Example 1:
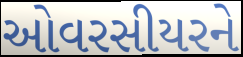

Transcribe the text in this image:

ઓવરસીયરને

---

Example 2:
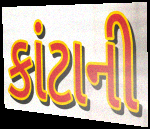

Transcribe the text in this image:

કાંટાની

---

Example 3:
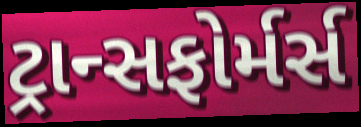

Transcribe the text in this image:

ટ્રાન્સફોર્મર્સ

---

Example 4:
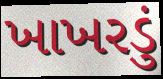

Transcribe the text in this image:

ખાખરડું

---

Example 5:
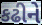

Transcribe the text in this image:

કઢીને